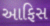
આફિસ